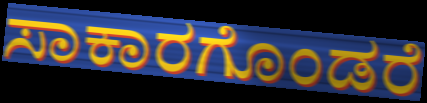
ಸಾಕಾರಗೊಂಡರೆ